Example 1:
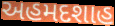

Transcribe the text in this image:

અહમદશાહ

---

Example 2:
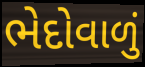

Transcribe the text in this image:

ભેદોવાળું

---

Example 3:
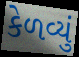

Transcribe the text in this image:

કેળવ્યું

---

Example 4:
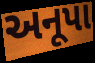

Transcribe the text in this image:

અનૂપા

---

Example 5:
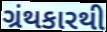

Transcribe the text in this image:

ગ્રંથકારથી